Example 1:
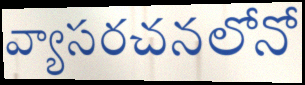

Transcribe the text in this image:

వ్యాసరచనలోనో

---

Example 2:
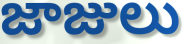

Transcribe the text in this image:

జాజులు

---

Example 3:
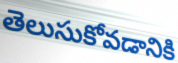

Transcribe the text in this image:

తెలుసుకోవడానికి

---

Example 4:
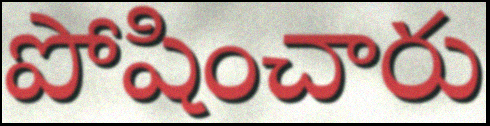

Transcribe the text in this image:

పోషించారు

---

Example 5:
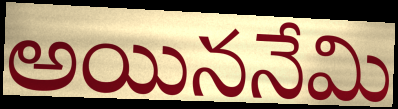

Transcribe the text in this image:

అయిననేమి